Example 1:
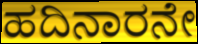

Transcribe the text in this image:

ಹದಿನಾರನೇ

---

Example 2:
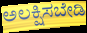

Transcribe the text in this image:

ಅಲಕ್ಷಿಸಬೇಡಿ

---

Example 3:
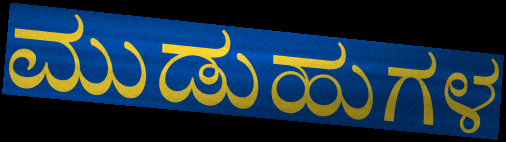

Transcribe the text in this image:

ಮುಡುಹುಗಳ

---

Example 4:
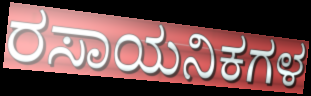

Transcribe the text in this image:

ರಸಾಯನಿಕಗಳ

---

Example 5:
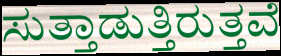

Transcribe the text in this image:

ಸುತ್ತಾಡುತ್ತಿರುತ್ತವೆ